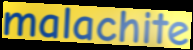
malachite